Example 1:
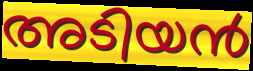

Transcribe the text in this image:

അടിയൻ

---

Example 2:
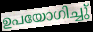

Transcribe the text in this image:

ഉപയോഗിച്ചു്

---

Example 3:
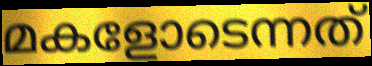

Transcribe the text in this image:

മകളോടെന്നത്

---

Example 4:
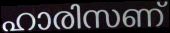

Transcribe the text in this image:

ഹാരിസണ്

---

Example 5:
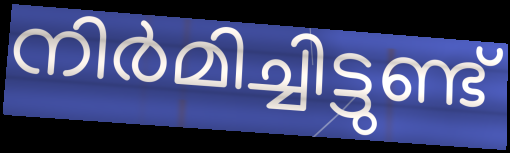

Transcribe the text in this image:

നിർമിച്ചിട്ടുണ്ട്